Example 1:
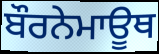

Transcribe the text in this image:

ਬੌਰਨੇਮਾਊਥ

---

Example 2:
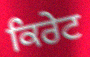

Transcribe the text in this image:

ਕਿਰੇਟ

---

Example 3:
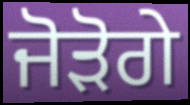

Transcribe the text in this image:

ਜੋੜੋਗੇ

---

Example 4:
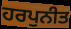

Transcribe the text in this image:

ਹਰਪੁਨੀਤ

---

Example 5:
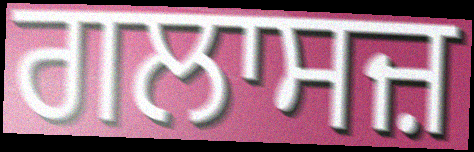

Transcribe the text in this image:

ਗਲਾਸਜ਼